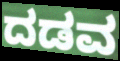
ದಡವ